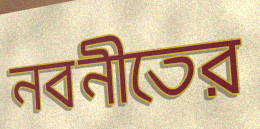
নবনীতের